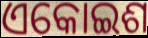
ଏକୋଇଶ